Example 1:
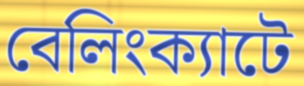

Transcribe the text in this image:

বেলিংক্যাটে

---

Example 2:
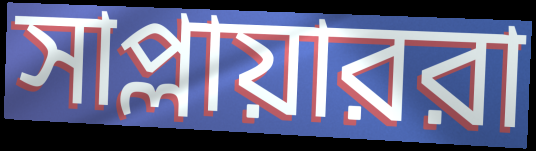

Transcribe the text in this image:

সাপ্লায়াররা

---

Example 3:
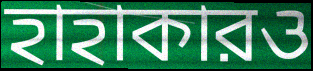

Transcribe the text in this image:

হাহাকারও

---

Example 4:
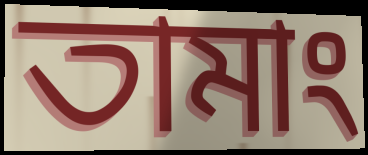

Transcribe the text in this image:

তামাং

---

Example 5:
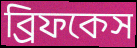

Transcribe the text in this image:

ব্রিফকেস